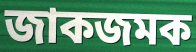
জাকজমক